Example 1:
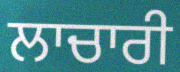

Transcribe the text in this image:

ਲਾਚਾਰੀ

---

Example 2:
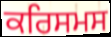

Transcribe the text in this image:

ਕਰਿਸਮਸ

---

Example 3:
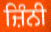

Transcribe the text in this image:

ਜ਼ਿੰਨੀ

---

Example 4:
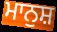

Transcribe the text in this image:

ਮਾਨੁਸ਼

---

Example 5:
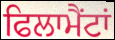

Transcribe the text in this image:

ਫਿਲਾਮੈਂਟਾਂ